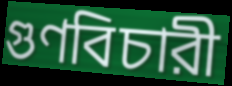
গুণবিচারী